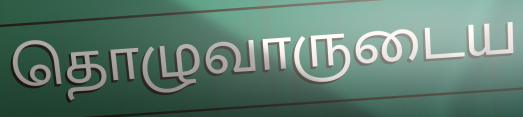
தொழுவாருடைய